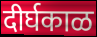
दीर्घकाळ